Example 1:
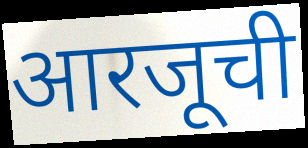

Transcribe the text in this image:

आरजूची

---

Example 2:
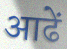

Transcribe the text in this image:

आढें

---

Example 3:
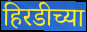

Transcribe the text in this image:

हिरडीच्या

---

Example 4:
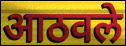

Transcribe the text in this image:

आठवले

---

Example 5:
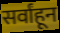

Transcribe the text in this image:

सर्वांहून